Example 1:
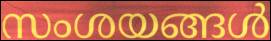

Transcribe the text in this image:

സംശയങ്ങൾ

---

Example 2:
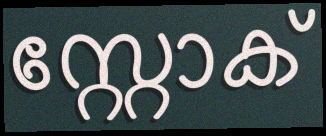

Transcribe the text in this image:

സ്റ്റോക്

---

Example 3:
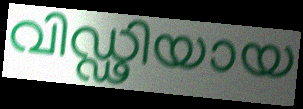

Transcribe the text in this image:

വിഡ്ഢിയായ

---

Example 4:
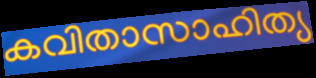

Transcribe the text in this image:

കവിതാസാഹിത്യ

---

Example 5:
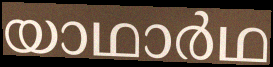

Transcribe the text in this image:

യാഥാർഥ